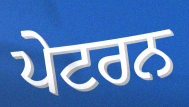
ਪੇਟਰਨ